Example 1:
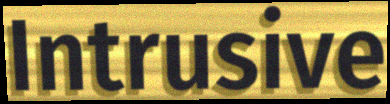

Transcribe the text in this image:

Intrusive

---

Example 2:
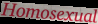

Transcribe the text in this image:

Homosexual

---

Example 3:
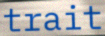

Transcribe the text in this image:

trait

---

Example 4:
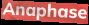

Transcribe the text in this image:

Anaphase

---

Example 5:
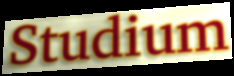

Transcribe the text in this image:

Studium